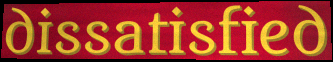
dissatisfied